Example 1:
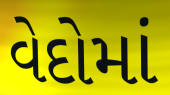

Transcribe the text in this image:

વેદોમાં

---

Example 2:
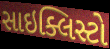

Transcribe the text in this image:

સાઇક્લિસ્ટો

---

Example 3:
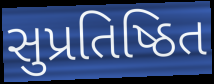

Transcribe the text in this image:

સુપ્રતિષ્ઠિત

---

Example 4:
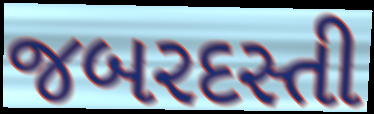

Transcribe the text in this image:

જબરદસ્તી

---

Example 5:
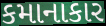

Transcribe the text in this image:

કમાનાકાર